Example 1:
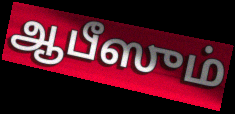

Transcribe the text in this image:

ஆபீஸும்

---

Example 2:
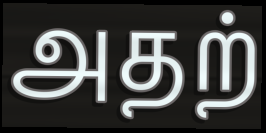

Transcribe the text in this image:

அதற்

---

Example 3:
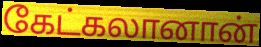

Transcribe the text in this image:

கேட்கலானான்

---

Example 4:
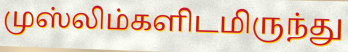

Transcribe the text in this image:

முஸ்லிம்களிடமிருந்து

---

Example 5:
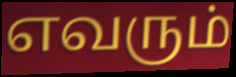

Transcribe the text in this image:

எவரும்